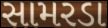
સામરડા